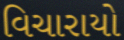
વિચારાયો